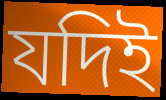
যদিই